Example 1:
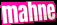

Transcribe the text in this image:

mahne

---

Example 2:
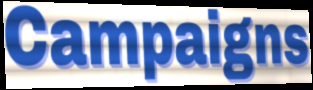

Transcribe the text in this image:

Campaigns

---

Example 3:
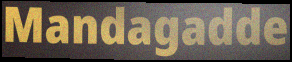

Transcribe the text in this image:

Mandagadde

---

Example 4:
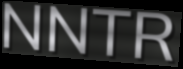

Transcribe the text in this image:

NNTR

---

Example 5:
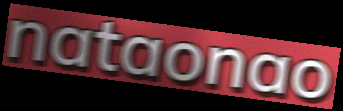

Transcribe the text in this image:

nataonao